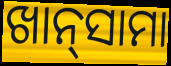
ଖାନ୍‍ସାମା